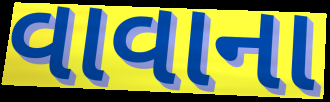
વાવાના